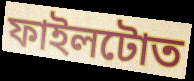
ফাইলটোত